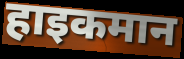
हाइकमान